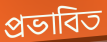
প্ৰভাবিত